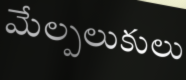
మేల్పలుకులు